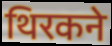
थिरकने